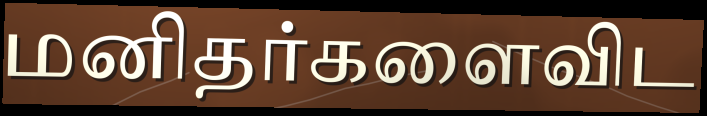
மனிதர்களைவிட